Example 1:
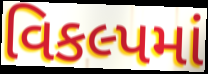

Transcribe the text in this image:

વિકલ્પમાં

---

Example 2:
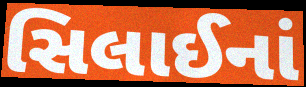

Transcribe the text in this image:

સિલાઈનાં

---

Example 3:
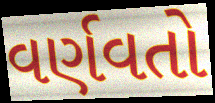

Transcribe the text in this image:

વર્ણવતો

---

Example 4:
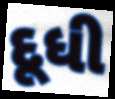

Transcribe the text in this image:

દૂધી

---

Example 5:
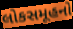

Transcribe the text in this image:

લોકસમૂહનો